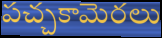
పచ్చకామెరలు